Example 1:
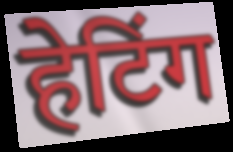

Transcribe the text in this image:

हेटिंग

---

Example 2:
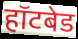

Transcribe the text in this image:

हॉटबेड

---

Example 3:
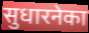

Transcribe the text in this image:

सुधारनेका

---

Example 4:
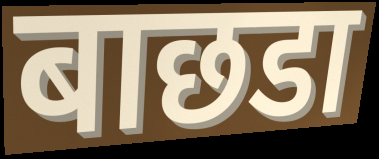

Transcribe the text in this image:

बाछडा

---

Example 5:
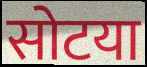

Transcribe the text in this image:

सोटया